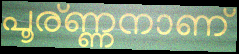
പൂര്ണ്ണനാണ്